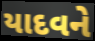
યાદવને